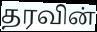
தரவின்